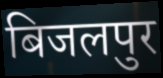
बिजलपुर